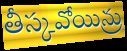
తీస్కవోయిన్రు